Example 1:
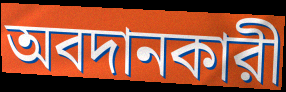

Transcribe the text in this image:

অবদানকারী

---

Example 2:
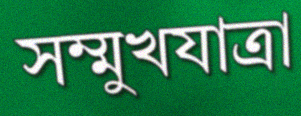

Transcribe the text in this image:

সম্মুখযাত্রা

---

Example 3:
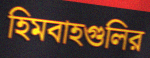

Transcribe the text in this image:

হিমবাহগুলির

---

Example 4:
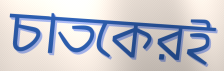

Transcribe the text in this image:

চাতকেরই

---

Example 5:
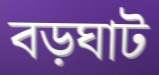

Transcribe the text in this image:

বড়ঘাট